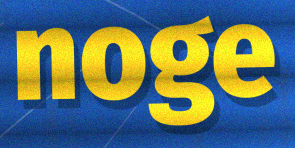
noge